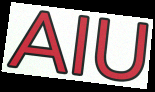
AIU